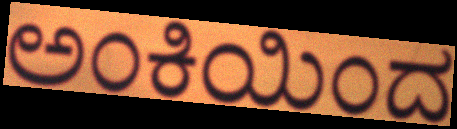
ಅಂಕಿಯಿಂದ